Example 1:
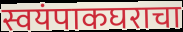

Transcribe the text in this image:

स्वयंपाकघराचा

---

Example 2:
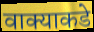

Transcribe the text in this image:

वाक्याकडे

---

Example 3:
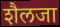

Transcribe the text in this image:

शैलजा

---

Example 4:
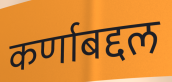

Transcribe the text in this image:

कर्णाबद्दल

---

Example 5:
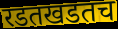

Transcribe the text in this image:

रडतखडतच